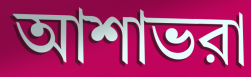
আশাভরা